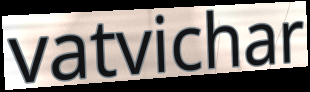
vatvichar